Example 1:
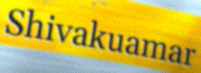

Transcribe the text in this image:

Shivakuamar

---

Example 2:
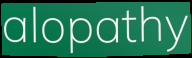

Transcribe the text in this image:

alopathy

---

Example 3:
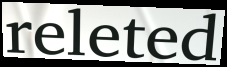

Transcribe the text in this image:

releted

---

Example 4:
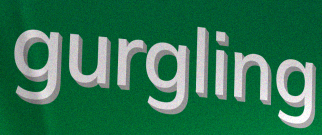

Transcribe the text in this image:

gurgling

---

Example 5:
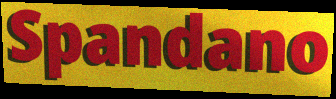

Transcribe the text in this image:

Spandano